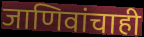
जाणिवांचाही